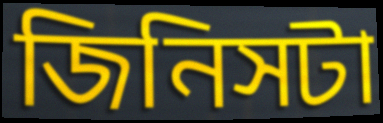
জিনিসটা